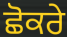
ਛੋਕਰੇ